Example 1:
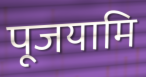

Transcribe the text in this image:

पूजयामि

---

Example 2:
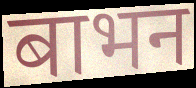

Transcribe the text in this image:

बाभन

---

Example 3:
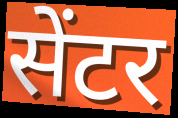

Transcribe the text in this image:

सेंटर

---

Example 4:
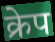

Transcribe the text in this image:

क्रेप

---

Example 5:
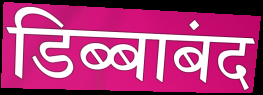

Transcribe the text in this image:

डिब्बाबंद